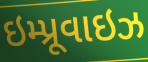
ઇમ્પ્રૂવાઇઝ